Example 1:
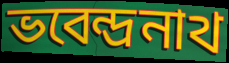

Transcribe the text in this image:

ভবেন্দ্ৰনাথ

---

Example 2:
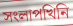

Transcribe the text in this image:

সংলাপখিনি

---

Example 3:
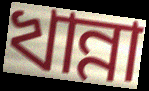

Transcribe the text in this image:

খান্না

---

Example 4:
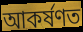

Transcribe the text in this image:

আকৰ্ষণত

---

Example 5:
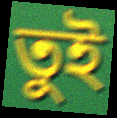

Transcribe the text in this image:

তুই